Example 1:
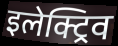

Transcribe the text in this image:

इलेक्ट्रिव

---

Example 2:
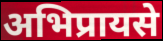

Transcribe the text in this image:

अभिप्रायसे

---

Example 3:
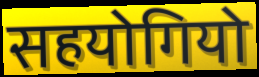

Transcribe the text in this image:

सहयोगियो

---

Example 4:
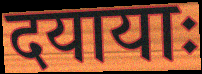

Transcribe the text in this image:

दयायाः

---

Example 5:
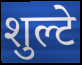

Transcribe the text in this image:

शुल्टे